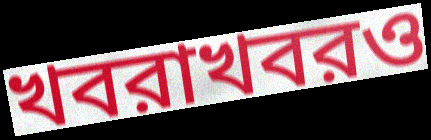
খবরাখবরও